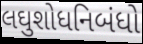
લઘુશોધનિબંધો